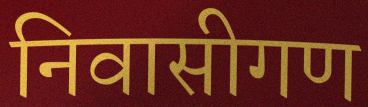
निवासीगण